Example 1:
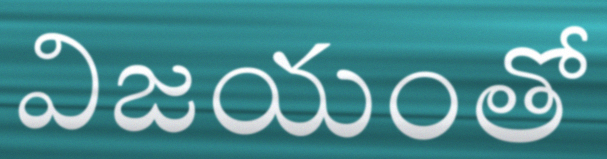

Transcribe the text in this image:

విజయంతో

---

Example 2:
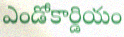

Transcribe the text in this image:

ఎండోకార్డియం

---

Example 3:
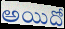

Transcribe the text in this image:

అయిదో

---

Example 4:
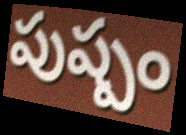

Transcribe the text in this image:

పుష్పం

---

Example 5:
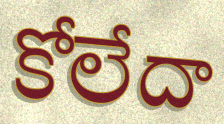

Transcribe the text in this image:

కోలేదా